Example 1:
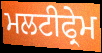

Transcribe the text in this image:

ਮਲਟੀਫ੍ਰੇਮ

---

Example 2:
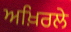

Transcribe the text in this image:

ਅਖ਼ਿਰਲੇ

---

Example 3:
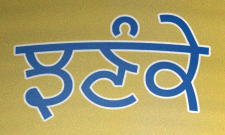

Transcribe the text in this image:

ਝਣੰਕੇ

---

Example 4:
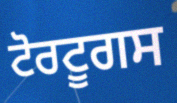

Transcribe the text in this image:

ਟੋਰਟੂਗਸ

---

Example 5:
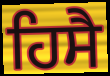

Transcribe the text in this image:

ਹਿਸੈ